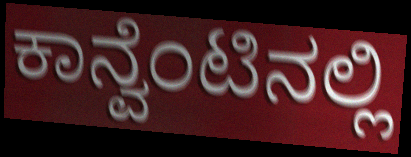
ಕಾನ್ವೆಂಟಿನಲ್ಲಿ